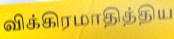
விக்கிரமாதித்திய